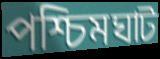
পশ্চিমঘাট